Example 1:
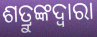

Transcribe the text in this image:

ଶତ୍ରୁଙ୍କଦ୍ୱାରା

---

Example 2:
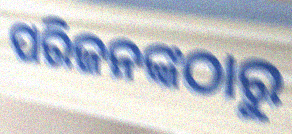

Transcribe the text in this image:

ପରିଜନଙ୍କଠାରୁ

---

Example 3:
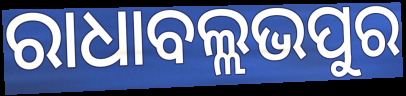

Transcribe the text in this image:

ରାଧାବଲ୍ଲଭପୁର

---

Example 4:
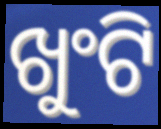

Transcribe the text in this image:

ଖୁଂଟି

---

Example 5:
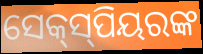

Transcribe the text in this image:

ସେକ୍‌ସ୍‌ପିୟରଙ୍କ